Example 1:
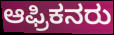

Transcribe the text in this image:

ಆಫ್ರಿಕನರು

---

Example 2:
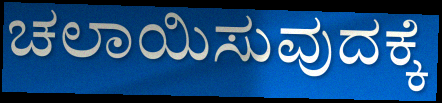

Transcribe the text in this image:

ಚಲಾಯಿಸುವುದಕ್ಕೆ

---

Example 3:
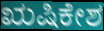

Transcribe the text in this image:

ಋಷಿಕೇಶ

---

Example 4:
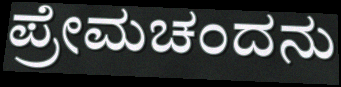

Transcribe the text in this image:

ಪ್ರೇಮಚಂದನು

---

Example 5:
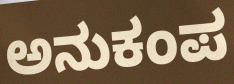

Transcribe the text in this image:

ಅನುಕಂಪ